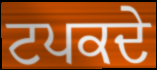
ਟਪਕਦੇ